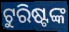
ଟୁରିଷ୍ଟଙ୍କ